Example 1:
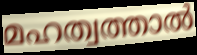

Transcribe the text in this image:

മഹത്വത്താൽ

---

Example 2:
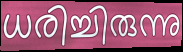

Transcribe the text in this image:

ധരിച്ചിരുന്നു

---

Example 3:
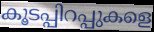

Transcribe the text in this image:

കൂടപ്പിറപ്പുകളെ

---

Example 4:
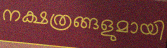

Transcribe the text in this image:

നക്ഷത്രങ്ങളുമായി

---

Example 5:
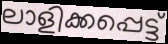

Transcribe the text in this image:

ലാളിക്കപ്പെട്ട്